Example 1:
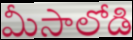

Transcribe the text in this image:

మీసాలోడి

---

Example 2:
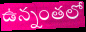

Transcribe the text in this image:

ఉన్నంతలో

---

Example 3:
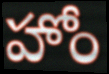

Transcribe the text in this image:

హోం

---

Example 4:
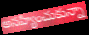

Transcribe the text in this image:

అసహ్యించుకున్నా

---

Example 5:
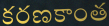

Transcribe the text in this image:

కరణకాంత